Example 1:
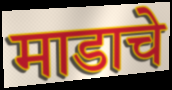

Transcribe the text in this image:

माडाचे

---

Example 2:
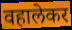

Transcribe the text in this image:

वहालेकर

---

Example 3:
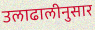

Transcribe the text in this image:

उलाढालीनुसार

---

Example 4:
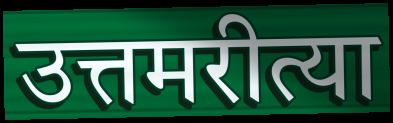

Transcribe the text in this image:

उत्तमरीत्या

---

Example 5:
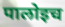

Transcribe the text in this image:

पालोइच